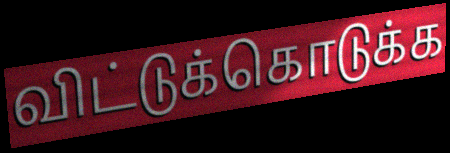
விட்டுக்கொடுக்க